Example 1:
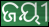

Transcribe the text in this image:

ଜୟୀ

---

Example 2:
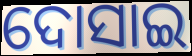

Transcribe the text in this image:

ଦୋସାଇ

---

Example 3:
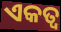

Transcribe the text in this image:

ଏକତ୍ୱ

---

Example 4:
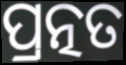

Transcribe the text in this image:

ପ୍ରତ୍ନତ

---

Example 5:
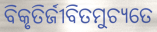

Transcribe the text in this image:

ବିକୃତିର୍ଜୀବିତମୁଚ୍ୟତେ